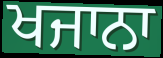
ਖਜਾਨਾ